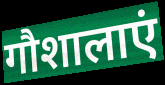
गौशालाएं